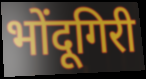
भोंदूगिरी